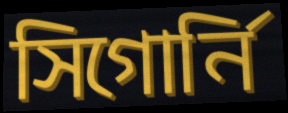
সিগোর্নি